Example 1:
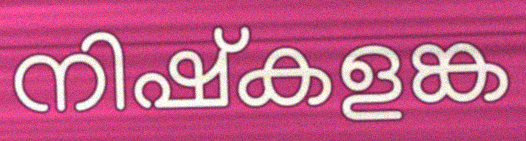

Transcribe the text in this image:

നിഷ്കളങ്ക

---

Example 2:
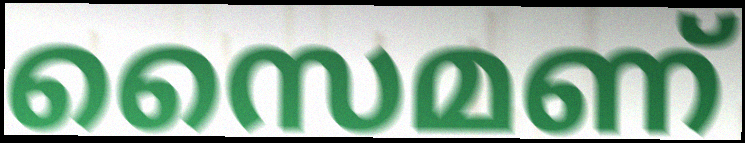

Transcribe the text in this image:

സൈമണ്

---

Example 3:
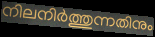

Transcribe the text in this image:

നിലനിർത്തുന്നതിനും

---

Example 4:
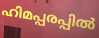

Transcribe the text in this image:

ഹിമപ്പരപ്പിൽ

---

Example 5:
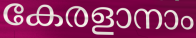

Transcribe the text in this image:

കേരളാനാം